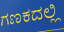
ಗಣಕದಲ್ಲಿ